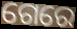
ଗେରେ